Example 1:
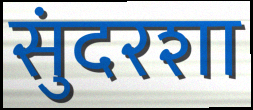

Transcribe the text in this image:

सुंदरशा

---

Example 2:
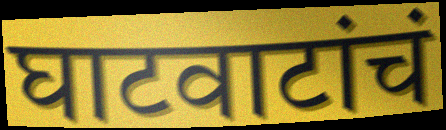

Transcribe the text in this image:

घाटवाटांचं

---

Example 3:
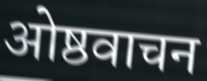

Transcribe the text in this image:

ओष्ठवाचन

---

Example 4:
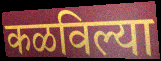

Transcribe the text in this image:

कळविल्या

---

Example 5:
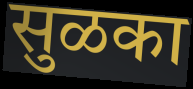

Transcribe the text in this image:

सुळका